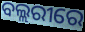
ବଲ୍ଲରୀରେ